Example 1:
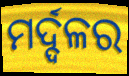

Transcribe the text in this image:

ମର୍ଦ୍ଦଳର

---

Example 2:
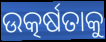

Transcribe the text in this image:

ଉତ୍କର୍ଷତାକୁ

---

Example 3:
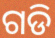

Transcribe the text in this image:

ଗଡି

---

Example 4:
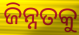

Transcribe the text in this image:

ଜିନ୍ନତକୁ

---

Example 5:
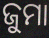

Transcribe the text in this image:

ଜୁମା